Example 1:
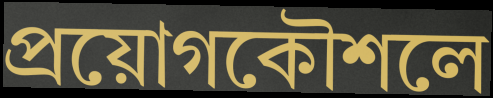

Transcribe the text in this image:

প্রয়োগকৌশলে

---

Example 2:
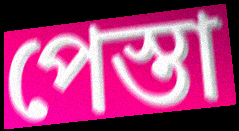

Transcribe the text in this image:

পেস্তা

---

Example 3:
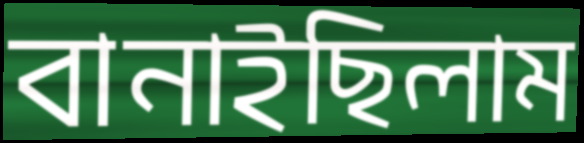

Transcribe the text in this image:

বানাইছিলাম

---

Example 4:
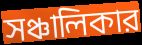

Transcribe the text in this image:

সঞ্চালিকার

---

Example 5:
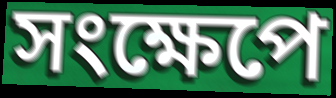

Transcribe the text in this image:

সংক্ষেপে